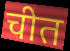
चीत